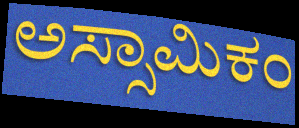
ಅಸ್ಸಾಮಿಕಂ